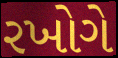
રખોગે